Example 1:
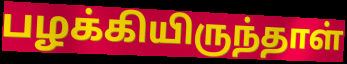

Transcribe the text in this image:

பழக்கியிருந்தாள்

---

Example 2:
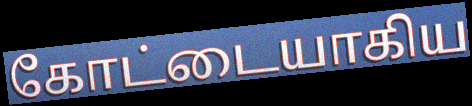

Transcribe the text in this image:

கோட்டையாகிய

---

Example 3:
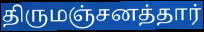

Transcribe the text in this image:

திருமஞ்சனத்தார்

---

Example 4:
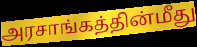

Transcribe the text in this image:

அரசாங்கத்தின்மீது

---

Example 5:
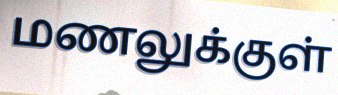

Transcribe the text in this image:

மணலுக்குள்